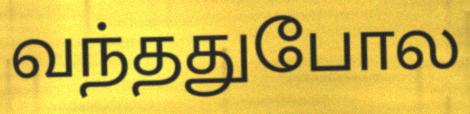
வந்ததுபோல